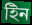
ইিন